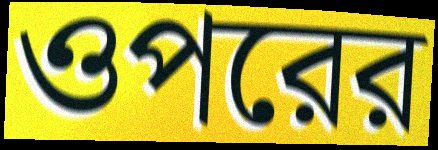
ওপরের